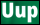
Uup